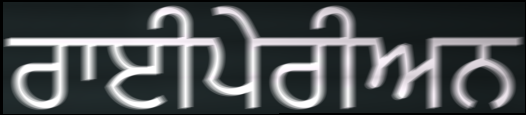
ਰਾਈਪੇਰੀਅਨ